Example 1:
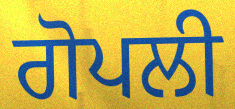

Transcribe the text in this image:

ਗੋਪਲੀ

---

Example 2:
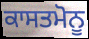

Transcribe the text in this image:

ਕਾਸਤਮੋਨੂ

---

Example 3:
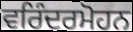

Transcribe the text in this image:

ਵਰਿੰਦਰਮੋਹਨ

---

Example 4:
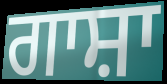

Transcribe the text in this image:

ਗਾਸ਼ਾ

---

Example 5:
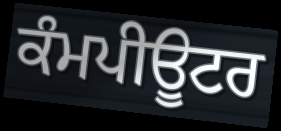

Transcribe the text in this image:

ਕੰਮਪੀਊਟਰ